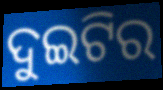
ଦୁଇଟିର